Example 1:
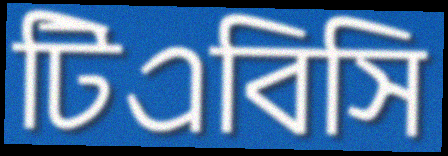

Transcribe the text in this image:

টিএবিসি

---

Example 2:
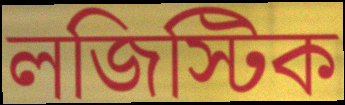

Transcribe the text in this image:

লজিস্টিক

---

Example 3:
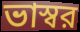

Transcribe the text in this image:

ভাস্বর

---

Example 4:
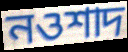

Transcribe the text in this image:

নওশাদ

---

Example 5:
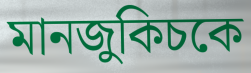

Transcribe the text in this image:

মানজুকিচকে